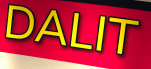
DALIT